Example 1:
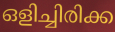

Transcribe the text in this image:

ഒളിച്ചിരിക്ക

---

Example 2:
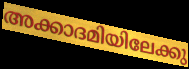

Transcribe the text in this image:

അക്കാദമിയിലേക്കു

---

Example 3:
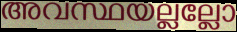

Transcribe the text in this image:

അവസ്ഥയല്ലല്ലോ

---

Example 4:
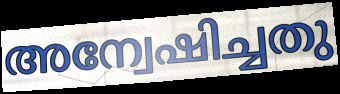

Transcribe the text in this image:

അന്വേഷിച്ചതു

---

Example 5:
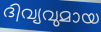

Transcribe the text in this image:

ദിവ്യവുമായ